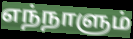
எந்நாளும்